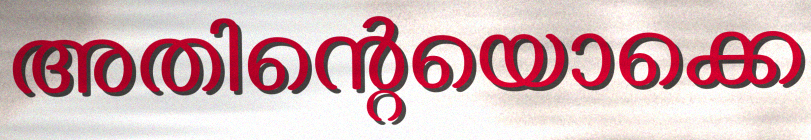
അതിന്റെയൊക്കെ